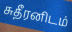
சுதீரனிடம்